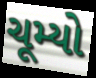
ચૂમ્યો